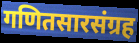
गणितसारसंग्रह